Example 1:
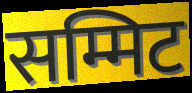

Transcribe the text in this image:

सम्मिट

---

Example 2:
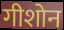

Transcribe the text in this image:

गीशोन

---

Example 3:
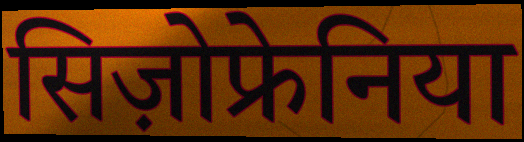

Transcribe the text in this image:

सिज़ोफ्रेनिया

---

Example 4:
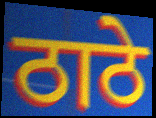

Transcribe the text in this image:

ठाठे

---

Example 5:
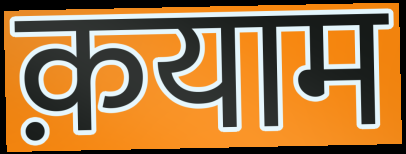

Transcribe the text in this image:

क़याम